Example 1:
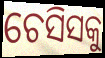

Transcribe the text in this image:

ଚେସିସକୁ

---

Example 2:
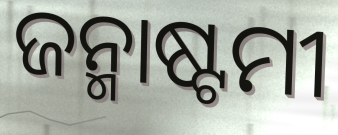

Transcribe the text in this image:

ଜନ୍ମାଷ୍ଟମୀ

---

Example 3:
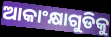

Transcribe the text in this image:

ଆକାଂକ୍ଷାଗୁଡିକୁ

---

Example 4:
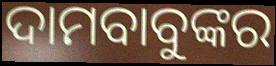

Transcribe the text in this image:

ଦାମବାବୁଙ୍କର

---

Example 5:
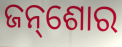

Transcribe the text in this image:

ଜନ୍‌ଶୋର